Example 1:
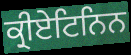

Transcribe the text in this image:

ਕ੍ਰੀਏਟਿਨਿਨ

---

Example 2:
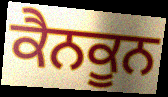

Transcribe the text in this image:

ਕੈਨਕੂਨ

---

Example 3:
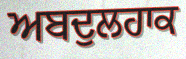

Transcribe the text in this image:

ਅਬਦੁਲਹਾਕ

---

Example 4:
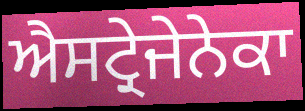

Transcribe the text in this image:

ਐਸਟ੍ਰੇਜੇਨੇਕਾ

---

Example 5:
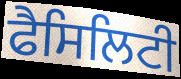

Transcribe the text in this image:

ਫੈਸਿਲਿਟੀ